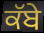
ਕੱਬੇ